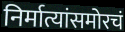
निर्मात्यांसमोरचं